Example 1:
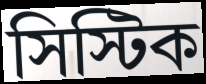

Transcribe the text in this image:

সিস্টিক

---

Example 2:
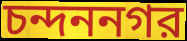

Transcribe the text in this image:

চন্দননগর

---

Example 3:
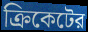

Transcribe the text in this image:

ক্রিকেটের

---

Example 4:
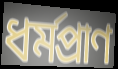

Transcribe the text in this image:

ধর্মপ্রাণ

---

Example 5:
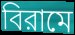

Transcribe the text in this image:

বিরামে